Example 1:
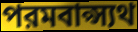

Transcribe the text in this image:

পরমবাপ্স্যথ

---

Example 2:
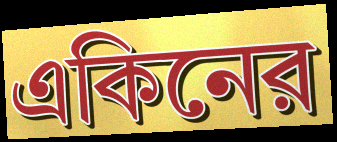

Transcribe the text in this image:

একিনের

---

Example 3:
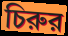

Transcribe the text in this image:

চিরুর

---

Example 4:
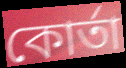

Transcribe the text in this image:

কোর্তা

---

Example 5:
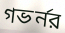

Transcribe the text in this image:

গভর্নর